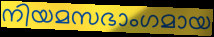
നിയമസഭാംഗമായ